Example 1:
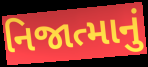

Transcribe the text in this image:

નિજાત્માનું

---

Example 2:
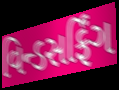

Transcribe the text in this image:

વિન્ડસર્ફિંગ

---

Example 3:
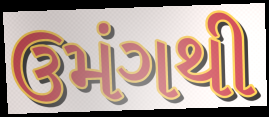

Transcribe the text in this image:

ઉમંગથી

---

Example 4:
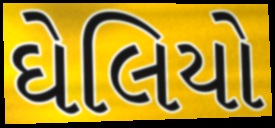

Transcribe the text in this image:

ઘેલિયો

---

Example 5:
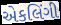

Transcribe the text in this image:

એકલિંગી